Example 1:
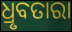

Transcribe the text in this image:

ଧ୍ରୃବତାରା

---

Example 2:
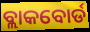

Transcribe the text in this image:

ବ୍ଲାକବୋର୍ଡ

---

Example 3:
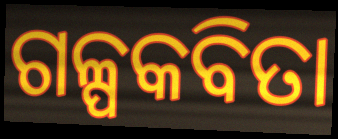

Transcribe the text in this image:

ଗଳ୍ପକବିତା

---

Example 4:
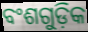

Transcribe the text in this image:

ବଂଶଗୁଡ଼ିକ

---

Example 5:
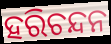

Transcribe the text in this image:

ହରିଚନ୍ଦନ